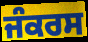
ਜੰਕਰਸ